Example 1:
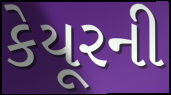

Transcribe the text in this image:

કેયૂરની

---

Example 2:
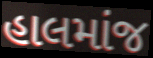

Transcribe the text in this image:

હાલમાંજ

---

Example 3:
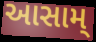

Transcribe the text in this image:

આસામ્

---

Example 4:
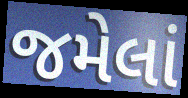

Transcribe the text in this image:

જમેલાં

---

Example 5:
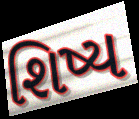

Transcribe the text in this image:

શિષ્ય